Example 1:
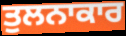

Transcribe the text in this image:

ਤੁਲਨਾਕਾਰ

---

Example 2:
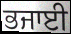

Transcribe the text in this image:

ਭਜਾਈ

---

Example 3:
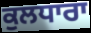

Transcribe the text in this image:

ਕੁਲਧਾਰਾ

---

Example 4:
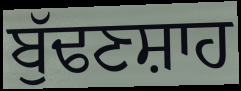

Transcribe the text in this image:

ਬੁੱਢਣਸ਼ਾਹ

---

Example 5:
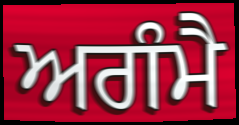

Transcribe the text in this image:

ਅਗੰਮੈ